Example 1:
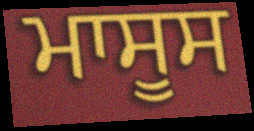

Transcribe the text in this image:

ਮਾਸੂਸ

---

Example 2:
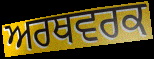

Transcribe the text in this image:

ਅਰਥਵਰਕ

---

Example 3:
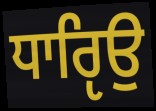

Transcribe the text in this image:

ਧਾਰੵਿਉ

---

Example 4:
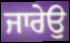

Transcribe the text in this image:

ਜਾਰੇਉ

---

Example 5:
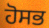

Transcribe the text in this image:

ਹੋਸਭ